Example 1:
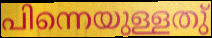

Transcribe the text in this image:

പിന്നെയുള്ളതു്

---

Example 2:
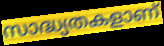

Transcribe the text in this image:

സാദ്ധ്യതകളാണ്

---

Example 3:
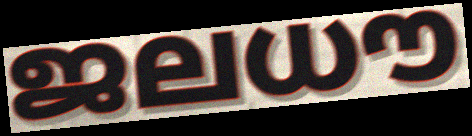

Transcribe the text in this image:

ജലധൗ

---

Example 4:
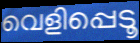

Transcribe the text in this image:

വെളിപ്പെടൂ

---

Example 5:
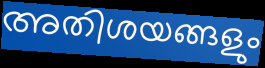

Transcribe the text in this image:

അതിശയങ്ങളും